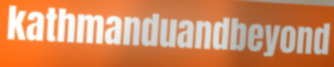
kathmanduandbeyond